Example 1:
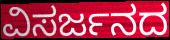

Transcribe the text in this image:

ವಿಸರ್ಜನದ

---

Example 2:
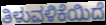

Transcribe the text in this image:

ತಿಳುವಳಿಕೆಯಿದೆ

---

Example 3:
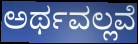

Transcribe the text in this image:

ಅರ್ಥವಲ್ಲವೆ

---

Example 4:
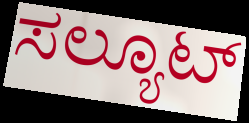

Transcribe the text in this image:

ಸಲ್ಯೂಟ್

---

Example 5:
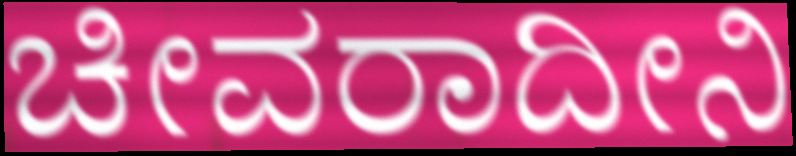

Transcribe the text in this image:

ಚೀವರಾದೀನಿ